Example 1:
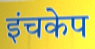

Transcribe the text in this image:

इंचकेप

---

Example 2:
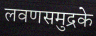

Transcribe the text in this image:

लवणसमुद्रके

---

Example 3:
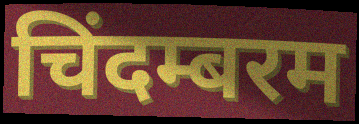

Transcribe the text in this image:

चिंदम्बरम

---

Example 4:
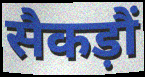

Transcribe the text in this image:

सैकड़ौं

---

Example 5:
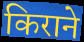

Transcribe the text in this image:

किराने